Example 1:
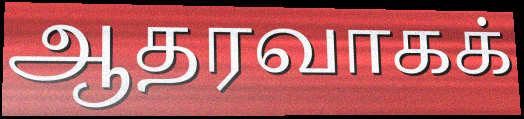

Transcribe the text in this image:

ஆதரவாகக்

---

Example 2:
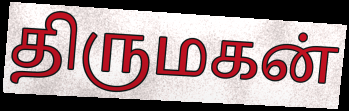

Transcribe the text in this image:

திருமகன்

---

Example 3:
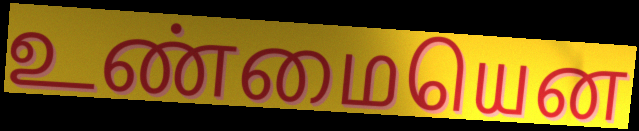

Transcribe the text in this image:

உண்மையென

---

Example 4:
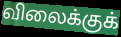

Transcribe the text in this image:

விலைக்குக்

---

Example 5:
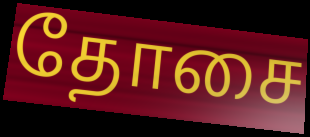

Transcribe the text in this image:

தோசை